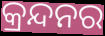
କ୍ରନ୍ଦନର